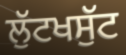
ਲੁੱਟਖਸੁੱਟ